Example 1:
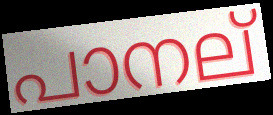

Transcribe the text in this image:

പാനല്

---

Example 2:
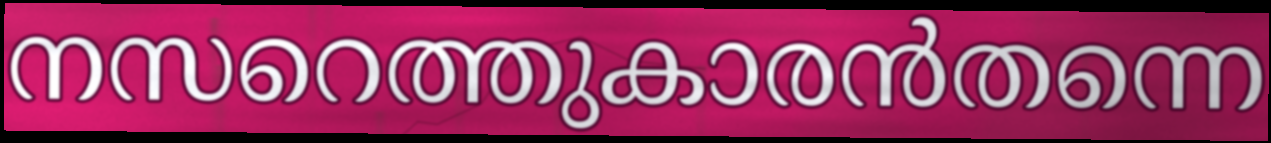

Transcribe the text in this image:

നസറെത്തുകാരൻതന്നെ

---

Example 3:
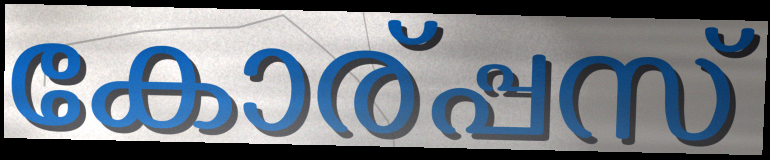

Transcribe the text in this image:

കോര്പ്പസ്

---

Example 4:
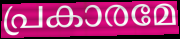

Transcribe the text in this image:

പ്രകാരമേ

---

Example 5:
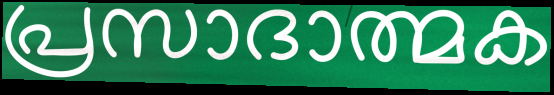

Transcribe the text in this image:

പ്രസാദാത്മക